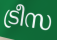
ട്രീസ